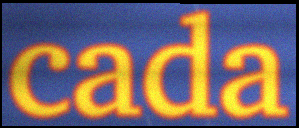
cada